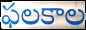
ఫలకాల